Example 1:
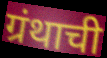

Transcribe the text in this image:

ग्रंथाची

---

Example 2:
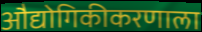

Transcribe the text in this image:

औद्योगिकीकरणाला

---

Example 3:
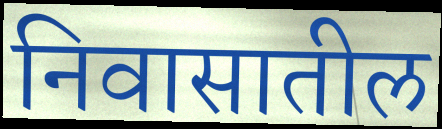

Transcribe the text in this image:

निवासातील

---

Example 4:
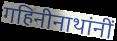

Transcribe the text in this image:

गहिनीनाथांनीं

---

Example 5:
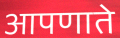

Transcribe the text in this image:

आपणाते